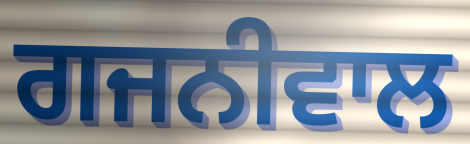
ਗਜਨੀਵਾਲ